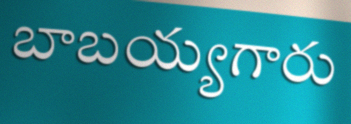
బాబయ్యగారు